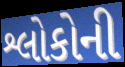
શ્લોકોની